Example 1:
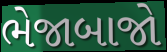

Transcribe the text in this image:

ભેજાબાજો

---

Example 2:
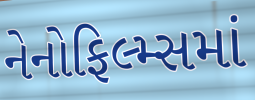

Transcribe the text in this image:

નેનોફિલ્મ્સમાં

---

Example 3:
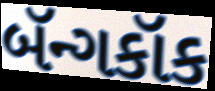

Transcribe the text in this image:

બૅન્ગકૉક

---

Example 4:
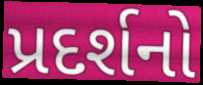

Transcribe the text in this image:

પ્રદર્શનો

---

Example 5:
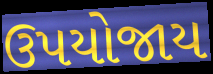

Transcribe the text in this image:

ઉપયોજાય